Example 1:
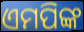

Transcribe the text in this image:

ଏମପିଙ୍କ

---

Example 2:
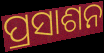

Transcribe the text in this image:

ପ୍ରସାଶନ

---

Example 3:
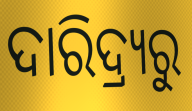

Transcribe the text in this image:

ଦାରିଦ୍ର୍ୟରୁ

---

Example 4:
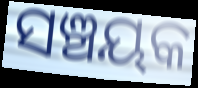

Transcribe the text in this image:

ସଞ୍ଚୟକ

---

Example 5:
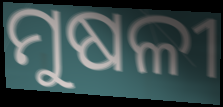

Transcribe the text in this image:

ମୁଷଳୀ